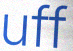
uff